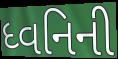
ધ્વનિની